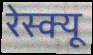
रेस्क्यू